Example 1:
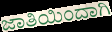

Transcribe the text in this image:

ಜಾತಿಯಿಂದಾಗಿ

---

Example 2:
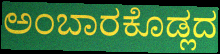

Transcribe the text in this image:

ಅಂಬಾರಕೊಡ್ಲದ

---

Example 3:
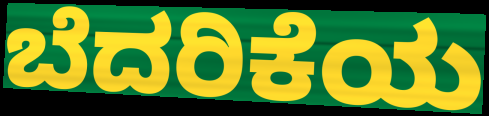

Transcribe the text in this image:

ಬೆದರಿಕೆಯ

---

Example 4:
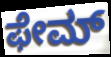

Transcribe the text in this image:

ಫೇಮ್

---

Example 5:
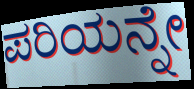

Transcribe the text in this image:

ಪರಿಯನ್ನೇ